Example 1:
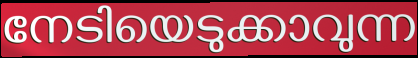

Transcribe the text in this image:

നേടിയെടുക്കാവുന്ന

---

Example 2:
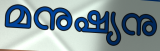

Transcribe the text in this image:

മനുഷ്യനു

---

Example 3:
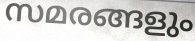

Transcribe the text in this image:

സമരങ്ങളും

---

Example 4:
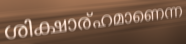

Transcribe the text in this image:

ശിക്ഷാര്ഹമാണെന്ന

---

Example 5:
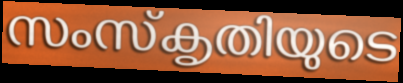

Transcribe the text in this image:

സംസ്‌കൃതിയുടെ